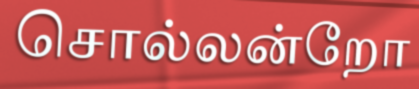
சொல்லன்றோ